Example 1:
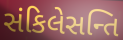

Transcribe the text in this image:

સંકિલેસન્તિ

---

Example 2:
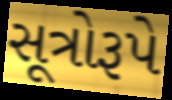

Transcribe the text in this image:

સૂત્રોરૂપે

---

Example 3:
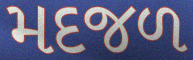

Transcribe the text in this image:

મદજળ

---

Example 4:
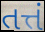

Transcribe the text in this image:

તત્તં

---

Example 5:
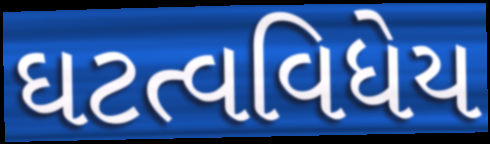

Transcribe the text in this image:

ઘટત્વવિધેય